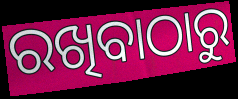
ରଖିବାଠାରୁ